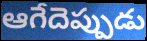
ఆగేదెప్పుడు